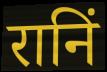
रानिं